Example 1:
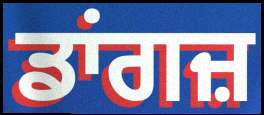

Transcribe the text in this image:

ਡਾਂਗਜ਼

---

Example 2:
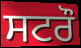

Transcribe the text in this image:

ਸਟਰੌ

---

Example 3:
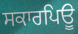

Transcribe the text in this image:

ਸਕਾਰਪਿਊ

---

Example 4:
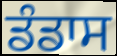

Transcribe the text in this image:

ਡੰਡਾਸ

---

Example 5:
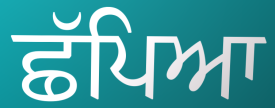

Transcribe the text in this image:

ਛੱਪਿਆ